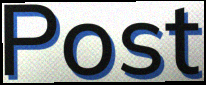
Post